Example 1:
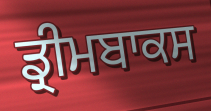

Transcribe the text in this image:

ਡ੍ਰੀਮਬਾਕਸ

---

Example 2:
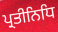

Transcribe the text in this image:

ਪ੍ਰਤੀਨਿਧਿ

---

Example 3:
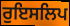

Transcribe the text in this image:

ਰੁਇਸਲਿਪ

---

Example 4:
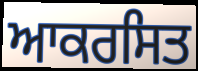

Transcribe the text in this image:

ਆਕਰਸਿਤ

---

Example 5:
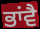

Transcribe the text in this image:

ਭਾਂਵੈ